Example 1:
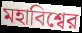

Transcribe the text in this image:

মহাবিশ্বের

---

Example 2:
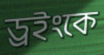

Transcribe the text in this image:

ড্রইংকে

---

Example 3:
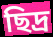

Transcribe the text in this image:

ছিদ্র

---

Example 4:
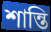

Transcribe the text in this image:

শান্তি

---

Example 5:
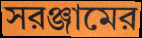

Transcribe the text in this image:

সরঞ্জামের